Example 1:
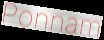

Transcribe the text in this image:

Ponnam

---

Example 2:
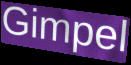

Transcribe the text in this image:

Gimpel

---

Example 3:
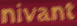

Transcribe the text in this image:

nivant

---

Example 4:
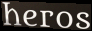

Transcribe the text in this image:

heros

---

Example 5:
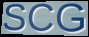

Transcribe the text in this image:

SCG